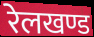
रेलखण्ड